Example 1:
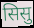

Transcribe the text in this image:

सिसु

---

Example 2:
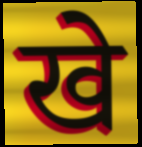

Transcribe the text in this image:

खे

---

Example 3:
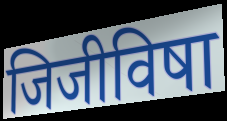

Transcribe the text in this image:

जिजीविषा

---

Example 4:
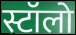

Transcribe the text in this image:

स्टॉलो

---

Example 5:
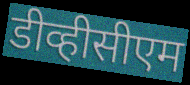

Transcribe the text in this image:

डीव्हीसीएम